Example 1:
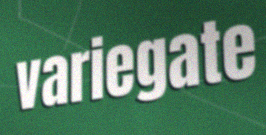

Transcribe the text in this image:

variegate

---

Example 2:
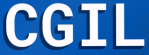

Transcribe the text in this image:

CGIL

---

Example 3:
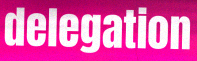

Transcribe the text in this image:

delegation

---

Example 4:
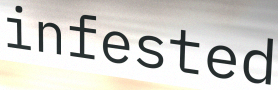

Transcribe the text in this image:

infested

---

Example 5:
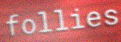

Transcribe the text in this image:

follies